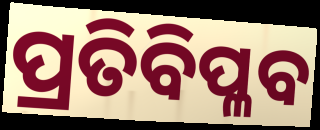
ପ୍ରତିବିପ୍ଳବ